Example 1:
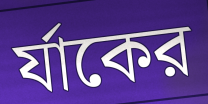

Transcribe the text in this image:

র্যাকের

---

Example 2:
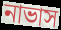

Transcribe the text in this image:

নাভাস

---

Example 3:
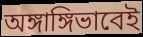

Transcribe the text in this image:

অঙ্গাঙ্গিভাবেই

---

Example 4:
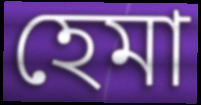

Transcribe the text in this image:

হেমা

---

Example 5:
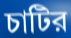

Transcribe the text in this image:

চাটির